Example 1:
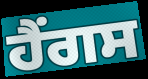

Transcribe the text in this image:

ਹੈਂਗਸ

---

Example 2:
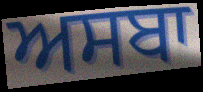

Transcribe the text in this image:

ਅਸਬਾ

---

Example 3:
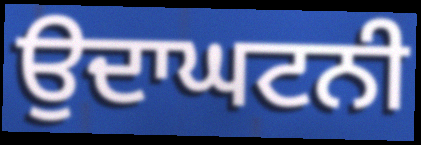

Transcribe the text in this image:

ਉਦਾਘਟਨੀ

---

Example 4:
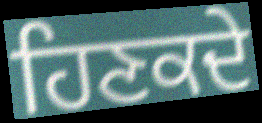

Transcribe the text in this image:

ਹਿਣਕਦੇ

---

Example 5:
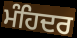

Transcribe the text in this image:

ਮੰਹਿਦਰ